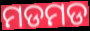
ମଡମଡ